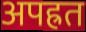
अपह्रत